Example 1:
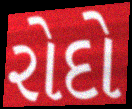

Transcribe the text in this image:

રોદો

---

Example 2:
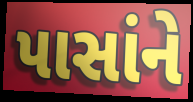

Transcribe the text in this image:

પાસાંને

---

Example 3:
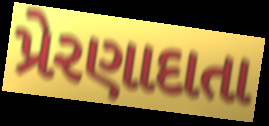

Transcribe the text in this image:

પ્રેરણાદાતા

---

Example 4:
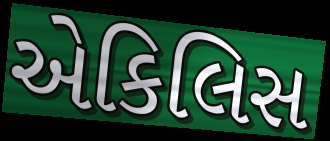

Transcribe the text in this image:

એકિલિસ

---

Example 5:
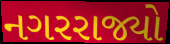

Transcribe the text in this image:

નગરરાજ્યો